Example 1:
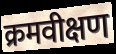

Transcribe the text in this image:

क्रमवीक्षण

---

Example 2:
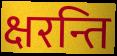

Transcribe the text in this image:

क्षरन्ति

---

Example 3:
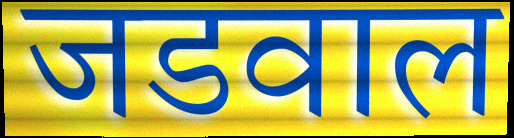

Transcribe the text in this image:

जडवाल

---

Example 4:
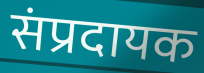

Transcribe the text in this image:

संप्रदायक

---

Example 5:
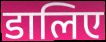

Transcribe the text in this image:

डालिए